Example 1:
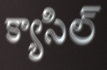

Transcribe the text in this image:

క్యాసిల్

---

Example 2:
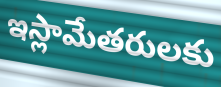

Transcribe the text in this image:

ఇస్లామేతరులకు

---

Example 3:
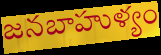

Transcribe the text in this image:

జనబాహుళ్యం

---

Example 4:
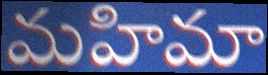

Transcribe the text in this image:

మహిమా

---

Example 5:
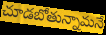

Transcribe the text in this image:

చూడబోతున్నామనే